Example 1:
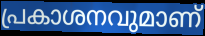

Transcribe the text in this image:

പ്രകാശനവുമാണ്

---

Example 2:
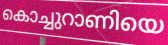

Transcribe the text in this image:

കൊച്ചുറാണിയെ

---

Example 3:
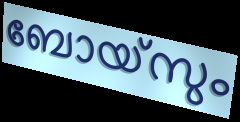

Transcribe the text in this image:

ബോയ്സും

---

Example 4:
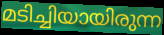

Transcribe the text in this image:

മടിച്ചിയായിരുന്ന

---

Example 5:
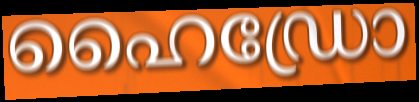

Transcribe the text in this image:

ഹൈഡ്രോ